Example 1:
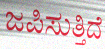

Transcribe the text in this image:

ಜಪಿಸುತ್ತಿದೆ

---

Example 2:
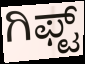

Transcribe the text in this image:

ಗಿಫ್ಟ್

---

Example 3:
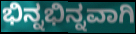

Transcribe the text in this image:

ಭಿನ್ನಭಿನ್ನವಾಗಿ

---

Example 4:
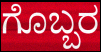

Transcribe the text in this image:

ಗೊಬ್ಬರ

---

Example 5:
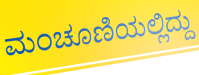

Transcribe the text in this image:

ಮಂಚೂಣಿಯಲ್ಲಿದ್ದು